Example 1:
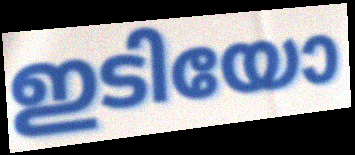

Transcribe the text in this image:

ഇടിയോ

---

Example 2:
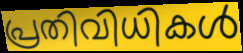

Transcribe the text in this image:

പ്രതിവിധികൾ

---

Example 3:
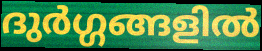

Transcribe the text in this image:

ദുർഗ്ഗങ്ങളിൽ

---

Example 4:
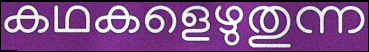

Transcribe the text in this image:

കഥകളെഴുതുന്ന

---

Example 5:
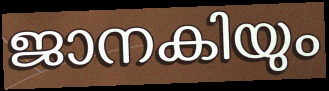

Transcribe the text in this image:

ജാനകിയും